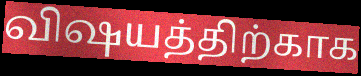
விஷயத்திற்காக